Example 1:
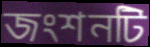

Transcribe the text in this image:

জংশনটি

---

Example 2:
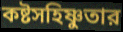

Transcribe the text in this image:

কষ্টসহিষ্ণুতার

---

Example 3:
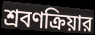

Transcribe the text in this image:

শ্রবণক্রিয়ার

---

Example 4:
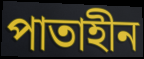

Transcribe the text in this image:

পাতাহীন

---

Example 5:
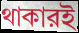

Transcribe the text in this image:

থাকারই